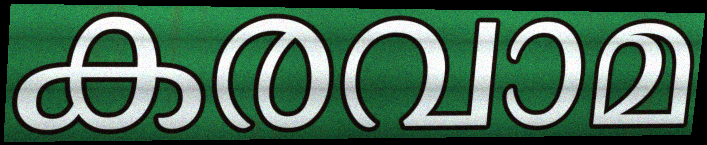
കരവാമ